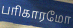
பரிகாரமோ